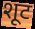
शूट